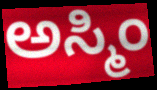
ಅಸ್ಮಿಂ